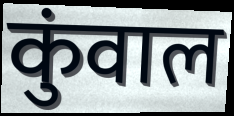
कुंवाल